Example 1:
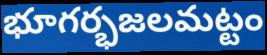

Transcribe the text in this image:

భూగర్భజలమట్టం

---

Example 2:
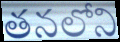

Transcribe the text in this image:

తనలోని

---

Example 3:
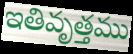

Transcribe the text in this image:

ఇతివృత్తము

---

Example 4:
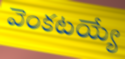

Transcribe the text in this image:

వెంకటయ్యే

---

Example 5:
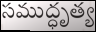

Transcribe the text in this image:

సముద్ధృత్య